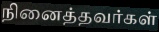
நினைத்தவர்கள்